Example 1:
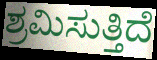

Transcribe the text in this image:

ಶ್ರಮಿಸುತ್ತಿದೆ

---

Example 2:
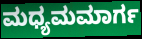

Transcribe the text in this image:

ಮಧ್ಯಮಮಾರ್ಗ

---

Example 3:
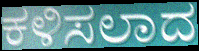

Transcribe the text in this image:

ಕಳಿಸಲಾದ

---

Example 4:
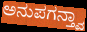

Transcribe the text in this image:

ಅನುಪಗನ್ತ್ವಾ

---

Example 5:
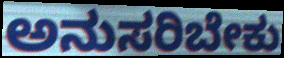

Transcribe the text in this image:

ಅನುಸರಿಬೇಕು